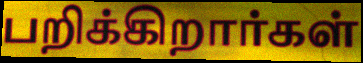
பறிக்கிறார்கள்